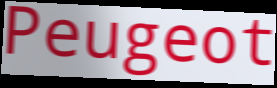
Peugeot